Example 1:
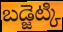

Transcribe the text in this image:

బడ్జెట్కి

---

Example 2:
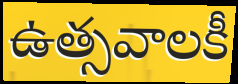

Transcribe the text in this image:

ఉత్సవాలకీ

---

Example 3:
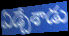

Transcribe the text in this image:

ఏడ్చేశాడు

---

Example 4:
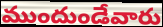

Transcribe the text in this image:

ముందుండేవారు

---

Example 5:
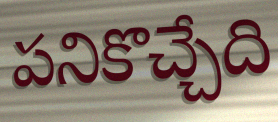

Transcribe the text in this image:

పనికొచ్చేది